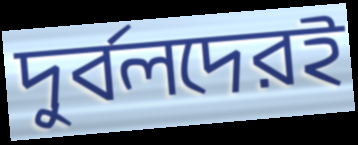
দুর্বলদেরই